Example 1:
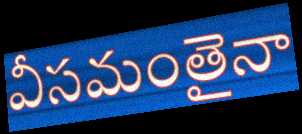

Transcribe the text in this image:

వీసమంతైనా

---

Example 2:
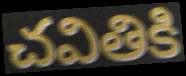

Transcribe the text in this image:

చవితికి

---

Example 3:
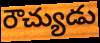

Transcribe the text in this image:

రౌచ్యుడు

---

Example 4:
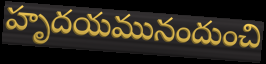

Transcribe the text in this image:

హృదయమునందుంచి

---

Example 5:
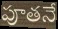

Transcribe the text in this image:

పూతనే